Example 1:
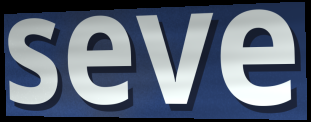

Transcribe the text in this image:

seve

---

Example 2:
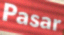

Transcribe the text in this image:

Pasar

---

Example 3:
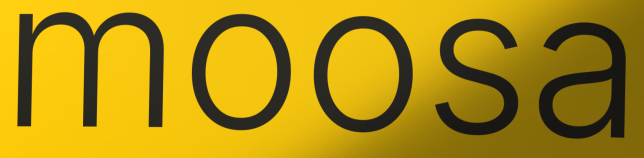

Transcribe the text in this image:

moosa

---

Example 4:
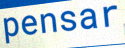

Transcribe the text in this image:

pensar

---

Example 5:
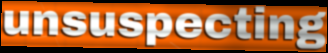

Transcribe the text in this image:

unsuspecting